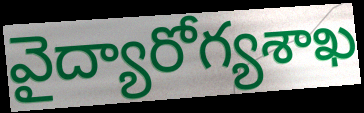
వైద్యారోగ్యశాఖ